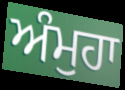
ਅੰਮੁਹਾ